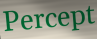
Percept